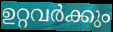
ഉറ്റവർക്കും